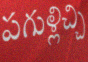
పగుళ్లిచ్చి